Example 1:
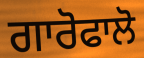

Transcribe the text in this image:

ਗਾਰੋਫਾਲੋ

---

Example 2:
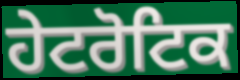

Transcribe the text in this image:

ਹੇਟਰੋਟਿਕ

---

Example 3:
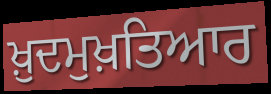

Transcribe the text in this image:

ਖ਼ੁਦਮੁਖ਼ਤਿਆਰ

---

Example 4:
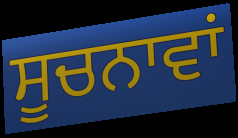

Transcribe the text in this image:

ਸੂਚਨਾਵਾਂ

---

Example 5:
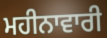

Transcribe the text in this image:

ਮਹੀਨਾਵਾਰੀ